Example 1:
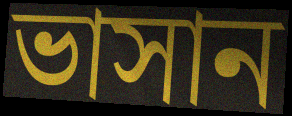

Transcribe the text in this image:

ভাসান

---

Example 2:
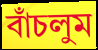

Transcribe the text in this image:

বাঁচলুম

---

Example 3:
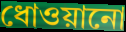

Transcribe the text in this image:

ধোওয়ানো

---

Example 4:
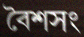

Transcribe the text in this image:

বৈশসং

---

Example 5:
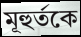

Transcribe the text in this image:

মূহুর্তকে